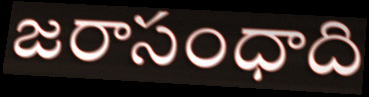
జరాసంధాది